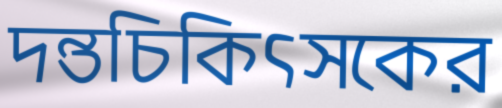
দন্তচিকিৎসকের